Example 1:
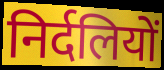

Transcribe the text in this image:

निर्दलियों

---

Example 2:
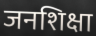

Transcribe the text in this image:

जनशिक्षा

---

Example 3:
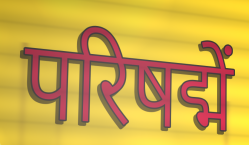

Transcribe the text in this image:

परिषद्में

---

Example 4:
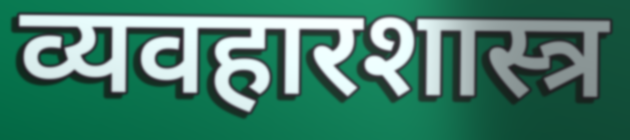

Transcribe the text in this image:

व्यवहारशास्त्र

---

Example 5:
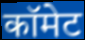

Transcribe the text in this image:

कॉमेट